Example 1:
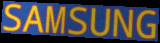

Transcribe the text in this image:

SAMSUNG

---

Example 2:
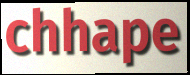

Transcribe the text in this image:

chhape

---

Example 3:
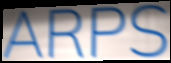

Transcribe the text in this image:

ARPS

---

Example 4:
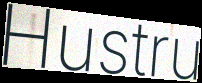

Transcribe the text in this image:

Hustru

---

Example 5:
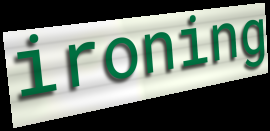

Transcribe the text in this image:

ironing